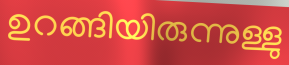
ഉറങ്ങിയിരുന്നുള്ളു